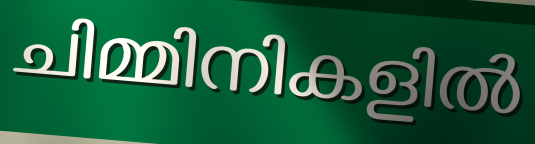
ചിമ്മിനികളിൽ